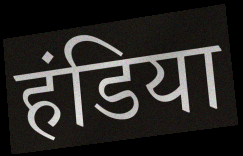
हंडिया